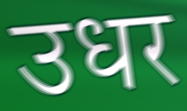
उधर